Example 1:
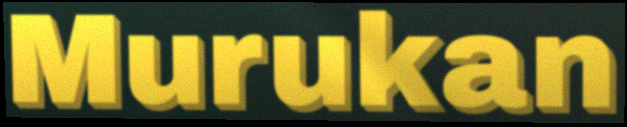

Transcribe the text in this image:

Murukan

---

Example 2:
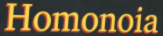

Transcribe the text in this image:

Homonoia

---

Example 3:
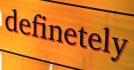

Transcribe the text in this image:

definetely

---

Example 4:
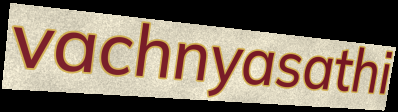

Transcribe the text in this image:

vachnyasathi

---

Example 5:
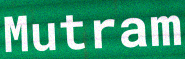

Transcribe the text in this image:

Mutram